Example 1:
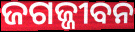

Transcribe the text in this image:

ଜଗଜ୍ଜୀବନ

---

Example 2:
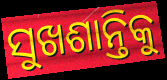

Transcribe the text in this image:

ସୁଖଶାନ୍ତିକୁ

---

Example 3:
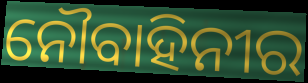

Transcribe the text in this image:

ନୌବାହିନୀର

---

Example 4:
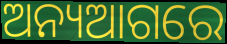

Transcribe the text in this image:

ଅନ୍ୟଆଗରେ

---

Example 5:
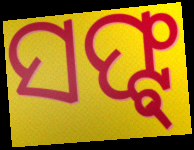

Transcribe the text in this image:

ସଫ୍ଟ୍